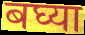
बघ्या